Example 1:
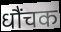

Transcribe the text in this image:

धौंचक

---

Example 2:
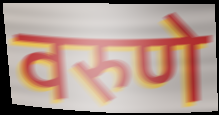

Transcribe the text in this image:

वरुणे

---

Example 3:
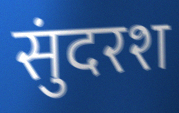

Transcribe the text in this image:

सुंदरश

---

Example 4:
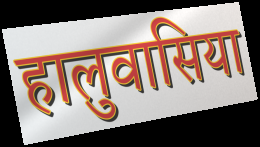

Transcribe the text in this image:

हालुवासिया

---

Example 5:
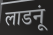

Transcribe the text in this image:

लाडनूं